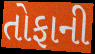
તોફાની